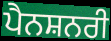
ਪੈਨਸ਼ਨਰੀ